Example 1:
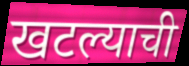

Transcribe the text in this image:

खटल्याची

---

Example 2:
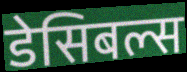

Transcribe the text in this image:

डेसिबल्स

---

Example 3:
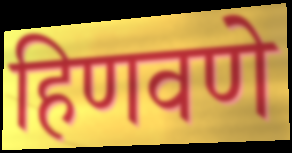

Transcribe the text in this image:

हिणवणे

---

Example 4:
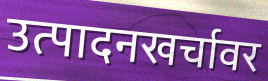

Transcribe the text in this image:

उत्पादनखर्चावर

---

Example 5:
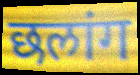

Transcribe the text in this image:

छलांग